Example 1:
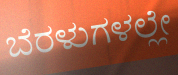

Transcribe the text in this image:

ಬೆರಳುಗಳಲ್ಲೇ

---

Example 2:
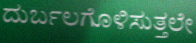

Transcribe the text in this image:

ದುರ್ಬಲಗೊಳಿಸುತ್ತಲೇ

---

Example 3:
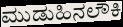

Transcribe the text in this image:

ಮುಡುಹಿನಲೌಕಿ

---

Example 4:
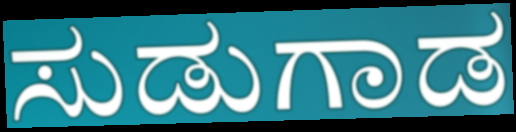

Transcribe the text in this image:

ಸುಡುಗಾಡ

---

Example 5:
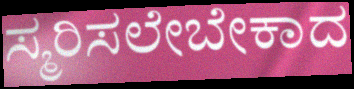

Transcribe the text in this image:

ಸ್ಮರಿಸಲೇಬೇಕಾದ